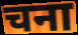
चना